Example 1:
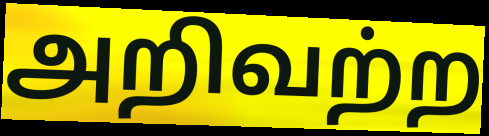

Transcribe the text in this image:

அறிவற்ற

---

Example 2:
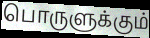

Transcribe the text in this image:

பொருளுக்கும்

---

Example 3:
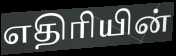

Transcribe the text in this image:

எதிரியின்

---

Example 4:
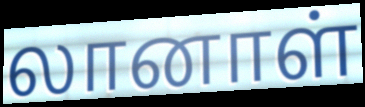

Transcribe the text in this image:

லானாள்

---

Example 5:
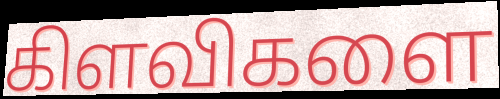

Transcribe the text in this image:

கிளவிகளை